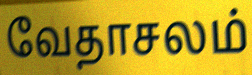
வேதாசலம்